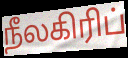
நீலகிரிப்